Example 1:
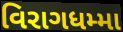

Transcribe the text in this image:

વિરાગધમ્મા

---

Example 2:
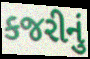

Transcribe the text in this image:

કજરીનું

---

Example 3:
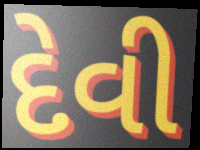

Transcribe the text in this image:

દેવી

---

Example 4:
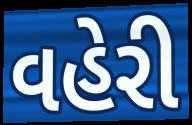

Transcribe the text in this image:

વહેરી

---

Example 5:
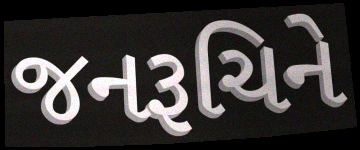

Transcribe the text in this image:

જનરૂચિને